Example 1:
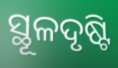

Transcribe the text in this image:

ସ୍ଥୂଳଦୃଷ୍ଟି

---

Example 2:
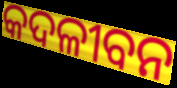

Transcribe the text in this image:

କଦଳୀବନ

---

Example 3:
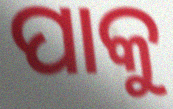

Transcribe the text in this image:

ପାକୁ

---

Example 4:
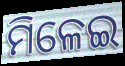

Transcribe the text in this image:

ମିଳେଇ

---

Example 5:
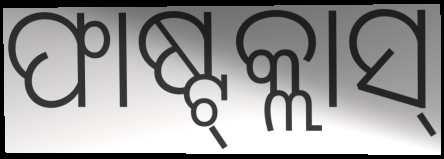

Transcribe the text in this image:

ଫାଷ୍ଟ୍‍କ୍ଲାସ୍